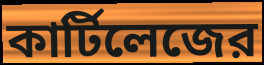
কার্টিলেজের